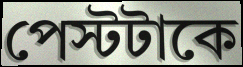
পেস্টটাকে